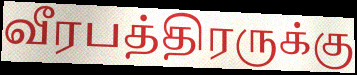
வீரபத்திரருக்கு